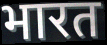
भारत